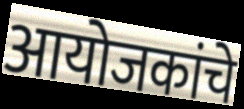
आयोजकांचे